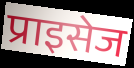
प्राइसेज